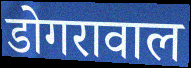
डोगरावाल